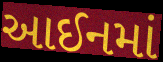
આઈનમાં